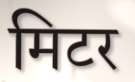
मिटर